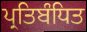
ਪ੍ਰਤਿਬੰਧਿਤ